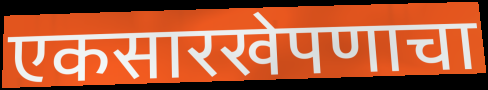
एकसारखेपणाचा